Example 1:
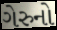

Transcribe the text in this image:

ગેરુનો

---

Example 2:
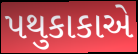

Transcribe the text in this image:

પથુકાકાએ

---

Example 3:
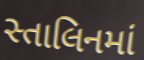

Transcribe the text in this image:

સ્તાલિનમાં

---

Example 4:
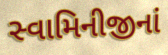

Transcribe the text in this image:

સ્વામિનીજીનાં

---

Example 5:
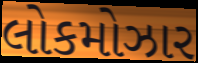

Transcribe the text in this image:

લોકમોઝાર